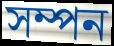
সম্পন